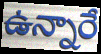
ఉన్నారే